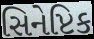
સિનેપ્ટિક